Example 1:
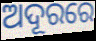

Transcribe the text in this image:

ଅଦୂରରେ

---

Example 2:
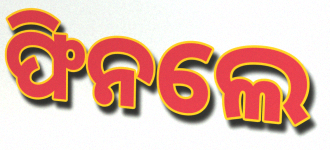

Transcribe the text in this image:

ଫିନଲେ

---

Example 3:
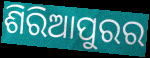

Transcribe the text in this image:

ଶିରିଆପୁରର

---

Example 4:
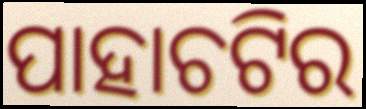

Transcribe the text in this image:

ପାହାଚଟିର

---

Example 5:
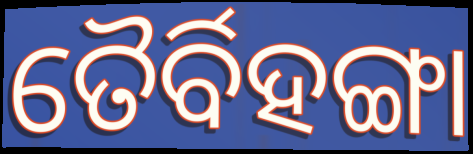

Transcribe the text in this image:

ତୈର୍ବିହଙ୍ଗା